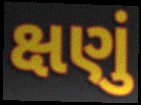
ક્ષણું